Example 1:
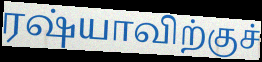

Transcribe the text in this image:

ரஷ்யாவிற்குச்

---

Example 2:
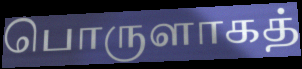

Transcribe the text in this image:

பொருளாகத்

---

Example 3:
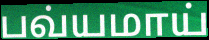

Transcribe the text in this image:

பவ்யமாய்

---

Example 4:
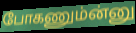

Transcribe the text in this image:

போகணும்ன்னு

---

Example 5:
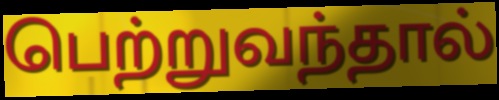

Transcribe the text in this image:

பெற்றுவந்தால்